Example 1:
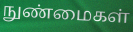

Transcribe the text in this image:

நுண்மைகள்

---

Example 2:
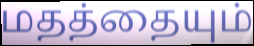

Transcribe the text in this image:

மதத்தையும்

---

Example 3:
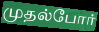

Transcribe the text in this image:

முதல்போர்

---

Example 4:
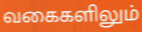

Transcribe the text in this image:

வகைகளிலும்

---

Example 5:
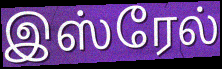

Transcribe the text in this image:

இஸ்ரேல்